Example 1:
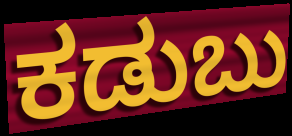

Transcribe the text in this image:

ಕಡುಬು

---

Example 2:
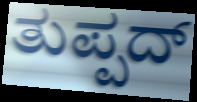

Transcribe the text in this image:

ತುಪ್ಪದ್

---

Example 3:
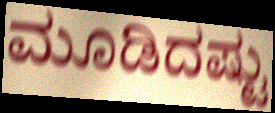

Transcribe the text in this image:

ಮೂಡಿದಷ್ಟು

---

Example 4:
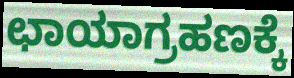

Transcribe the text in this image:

ಛಾಯಾಗ್ರಹಣಕ್ಕೆ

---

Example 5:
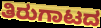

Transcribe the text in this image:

ತಿರುಗಾಟದ